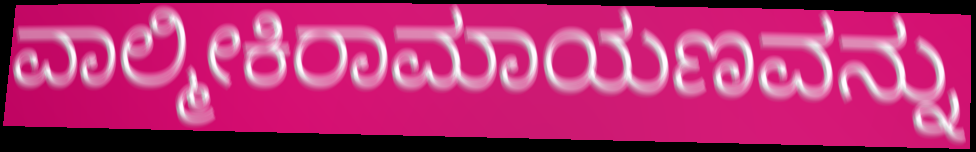
ವಾಲ್ಮೀಕಿರಾಮಾಯಣವನ್ನು